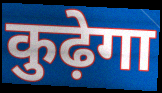
कुढ़ेगा